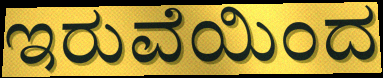
ಇರುವೆಯಿಂದ